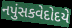
નપુંસકવેદોદયે